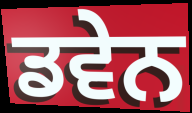
ਡਵੇਨ